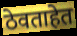
ठेवताहेत